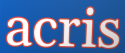
acris